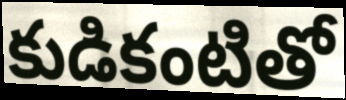
కుడికంటితో